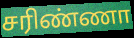
சரிண்ணா